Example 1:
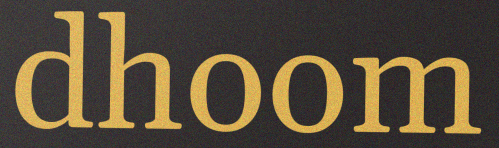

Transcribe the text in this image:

dhoom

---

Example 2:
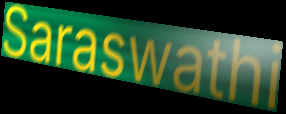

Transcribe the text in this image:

Saraswathi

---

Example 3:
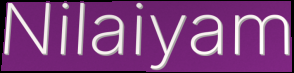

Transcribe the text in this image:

Nilaiyam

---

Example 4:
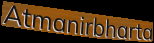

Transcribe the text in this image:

Atmanirbharta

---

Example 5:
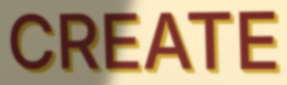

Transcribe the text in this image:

CREATE